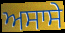
ਅਸਾਸੇ